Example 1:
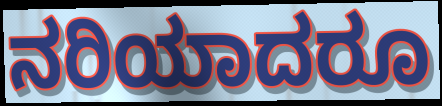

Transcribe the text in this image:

ನರಿಯಾದರೂ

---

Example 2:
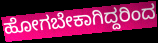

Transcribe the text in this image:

ಹೋಗಬೇಕಾಗಿದ್ದರಿಂದ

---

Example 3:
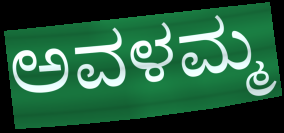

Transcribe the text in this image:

ಅವಳಮ್ಮ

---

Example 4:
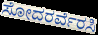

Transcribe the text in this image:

ಸೋದರರ್ವೆರಸಿ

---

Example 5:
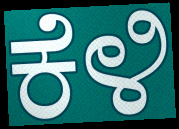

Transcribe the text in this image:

ಕೆಳಿ